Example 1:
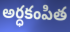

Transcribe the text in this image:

అర్ధకంపిత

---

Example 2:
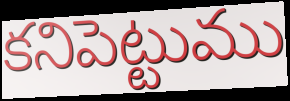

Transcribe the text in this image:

కనిపెట్టుము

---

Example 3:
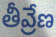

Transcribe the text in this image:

తీవ్రేణ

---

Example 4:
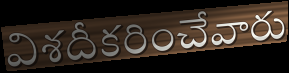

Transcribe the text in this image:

విశదీకరించేవారు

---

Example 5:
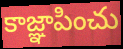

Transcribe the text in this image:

కాజ్ఞాపించు